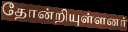
தோன்றியுள்ளனர்